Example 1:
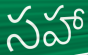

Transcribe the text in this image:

సహా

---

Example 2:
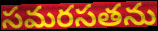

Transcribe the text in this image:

సమరసతను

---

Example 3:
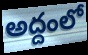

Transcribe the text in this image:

అద్దంలో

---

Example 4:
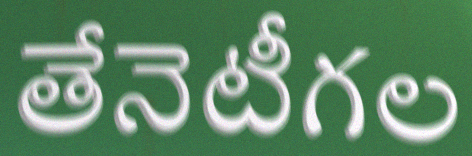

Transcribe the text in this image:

తేనెటీగల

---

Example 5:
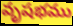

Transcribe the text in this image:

వృషభము